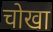
चोखा